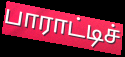
பாராட்டிச்